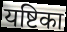
यष्टिका